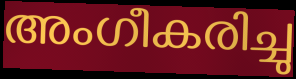
അംഗീകരിച്ചു